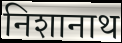
निशानाथ